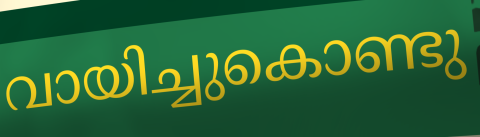
വായിച്ചുകൊണ്ടു